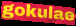
gokulae